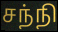
சந்நி